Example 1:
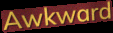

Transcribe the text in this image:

Awkward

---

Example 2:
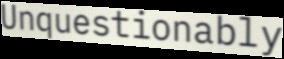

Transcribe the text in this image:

Unquestionably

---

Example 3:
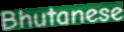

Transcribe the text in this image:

Bhutanese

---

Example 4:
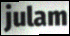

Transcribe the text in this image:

julam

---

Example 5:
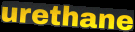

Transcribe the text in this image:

urethane